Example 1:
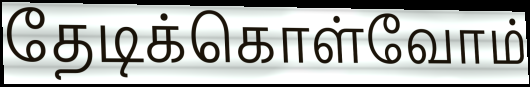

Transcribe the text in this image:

தேடிக்கொள்வோம்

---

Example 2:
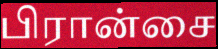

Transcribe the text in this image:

பிரான்சை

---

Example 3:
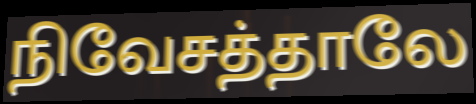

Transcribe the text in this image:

நிவேசத்தாலே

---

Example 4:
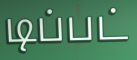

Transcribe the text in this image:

டிப்பட்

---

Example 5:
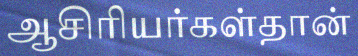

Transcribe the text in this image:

ஆசிரியர்கள்தான்